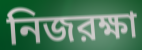
নিজরক্ষা